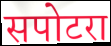
सपोटरा